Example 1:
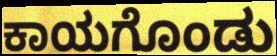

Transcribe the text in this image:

ಕಾಯಗೊಂಡು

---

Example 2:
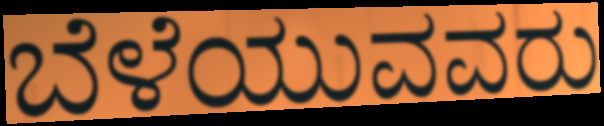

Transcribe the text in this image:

ಬೆಳೆಯುವವರು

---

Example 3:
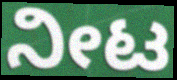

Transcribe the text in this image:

ನೀಟ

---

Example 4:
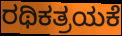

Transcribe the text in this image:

ರಥಿಕತ್ರಯಕೆ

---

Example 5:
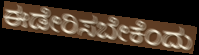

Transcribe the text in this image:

ಈಡೇರಿಸಬೇಕೆಂದು